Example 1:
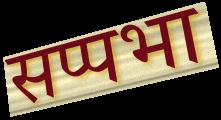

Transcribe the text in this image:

सप्पभा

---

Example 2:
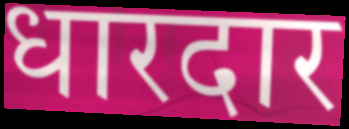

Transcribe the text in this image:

धारदार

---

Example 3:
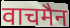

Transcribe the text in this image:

वाचमैन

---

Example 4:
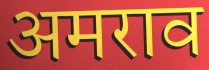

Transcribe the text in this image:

अमराव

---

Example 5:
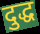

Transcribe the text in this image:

दुद्ध